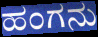
ಹಂಗನು